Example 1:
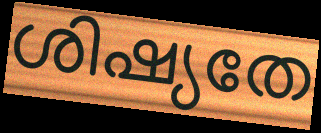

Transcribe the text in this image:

ശിഷ്യതേ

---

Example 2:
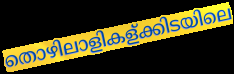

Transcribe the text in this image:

തൊഴിലാളികള്ക്കിടയിലെ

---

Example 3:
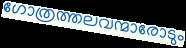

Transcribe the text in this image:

ഗോത്രത്തലവന്മാരോടും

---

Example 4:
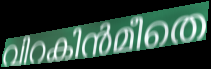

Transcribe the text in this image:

വിറകിൻമീതെ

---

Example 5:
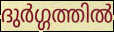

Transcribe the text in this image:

ദുർഗ്ഗത്തിൽ